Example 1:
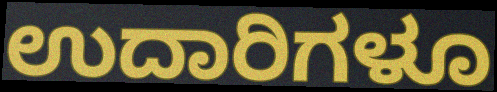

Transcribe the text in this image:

ಉದಾರಿಗಳೂ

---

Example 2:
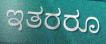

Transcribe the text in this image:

ಇತರರೂ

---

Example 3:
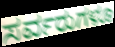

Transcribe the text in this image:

ಸರ್ವರುಗಳೂ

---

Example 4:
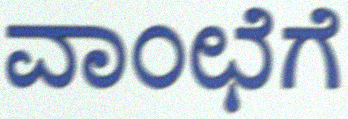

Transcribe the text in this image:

ವಾಂಛೆಗೆ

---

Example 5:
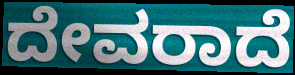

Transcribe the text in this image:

ದೇವರಾದೆ